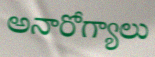
అనారోగ్యాలు